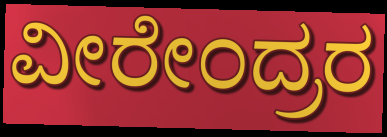
ವೀರೇಂದ್ರರ